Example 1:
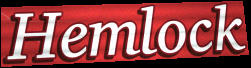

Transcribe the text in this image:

Hemlock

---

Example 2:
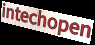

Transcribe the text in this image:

intechopen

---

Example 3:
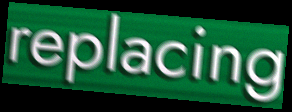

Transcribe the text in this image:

replacing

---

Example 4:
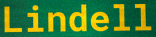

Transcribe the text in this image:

Lindell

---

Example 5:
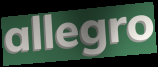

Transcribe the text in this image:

allegro